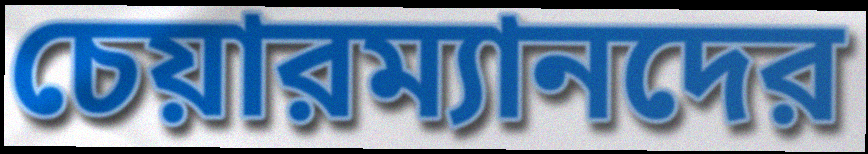
চেয়ারম্যানদের